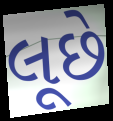
લૂછે